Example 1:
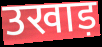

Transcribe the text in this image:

उखाड़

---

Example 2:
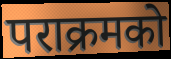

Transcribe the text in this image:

पराक्रमको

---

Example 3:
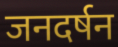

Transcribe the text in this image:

जनदर्षन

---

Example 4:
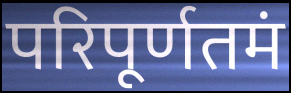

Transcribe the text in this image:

परिपूर्णतमं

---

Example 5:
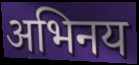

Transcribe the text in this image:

अभिनय